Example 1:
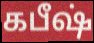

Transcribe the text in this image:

கபீஷ்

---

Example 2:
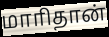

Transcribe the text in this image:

மாரிதான்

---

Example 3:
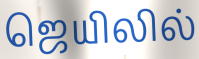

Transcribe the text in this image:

ஜெயிலில்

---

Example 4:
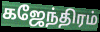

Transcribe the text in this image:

கஜேந்திரம்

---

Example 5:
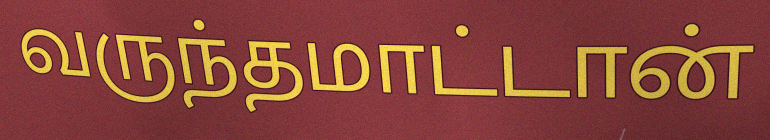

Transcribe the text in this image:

வருந்தமாட்டான்